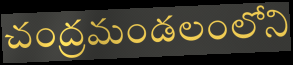
చంద్రమండలంలోని